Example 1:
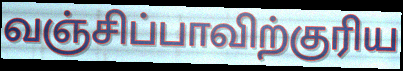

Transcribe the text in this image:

வஞ்சிப்பாவிற்குரிய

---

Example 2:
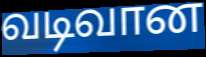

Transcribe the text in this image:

வடிவான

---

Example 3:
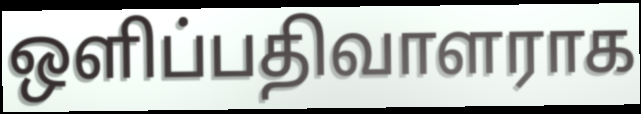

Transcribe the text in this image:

ஒளிப்பதிவாளராக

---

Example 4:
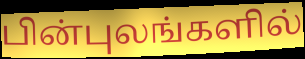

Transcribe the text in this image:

பின்புலங்களில்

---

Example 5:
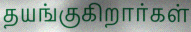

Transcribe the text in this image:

தயங்குகிறார்கள்